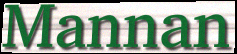
Mannan